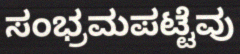
ಸಂಭ್ರಮಪಟ್ಟೆವು